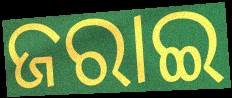
ଜରାଇ